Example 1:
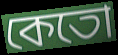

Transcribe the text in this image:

কেতো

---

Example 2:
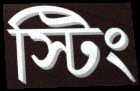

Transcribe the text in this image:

স্টিং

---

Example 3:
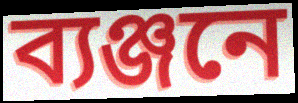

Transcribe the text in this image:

ব্যঞ্জনে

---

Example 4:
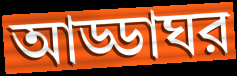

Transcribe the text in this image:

আড্ডাঘর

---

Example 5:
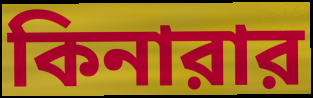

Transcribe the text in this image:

কিনারার